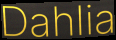
Dahlia